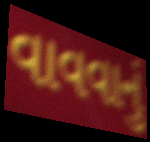
વાવવાનું